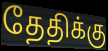
தேதிக்கு